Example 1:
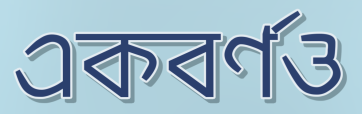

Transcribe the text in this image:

একবর্ণও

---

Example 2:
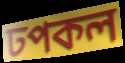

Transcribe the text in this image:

ঢপকল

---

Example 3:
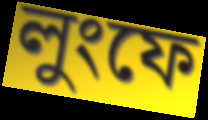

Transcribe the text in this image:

লুংফে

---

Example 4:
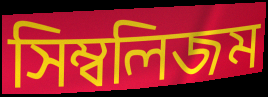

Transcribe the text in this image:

সিম্বলিজম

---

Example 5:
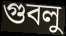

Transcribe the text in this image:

গুবলু